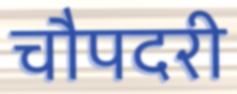
चौपदरी